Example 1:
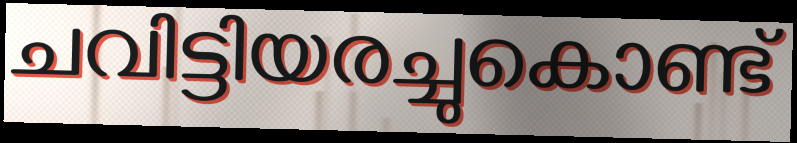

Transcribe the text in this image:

ചവിട്ടിയരച്ചുകൊണ്ട്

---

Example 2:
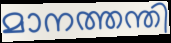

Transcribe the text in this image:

മാനത്തന്തി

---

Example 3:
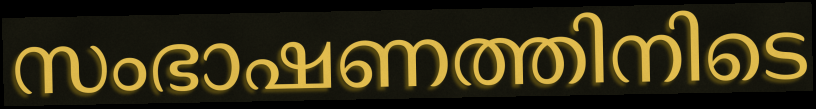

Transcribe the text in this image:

സംഭാഷണത്തിനിടെ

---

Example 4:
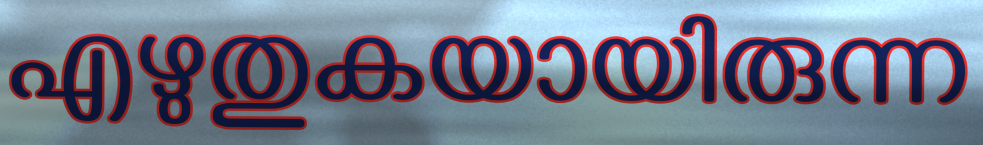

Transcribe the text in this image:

എഴുതുകയായിരുന്ന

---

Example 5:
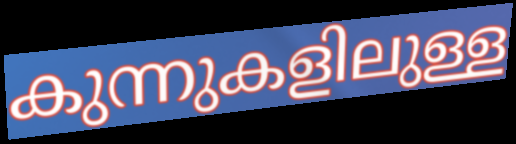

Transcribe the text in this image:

കുന്നുകളിലുള്ള